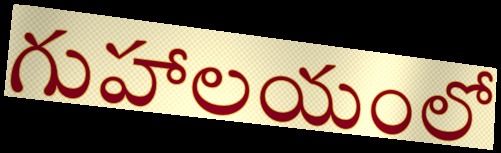
గుహాలయంలో